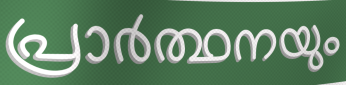
പ്രാർത്ഥനയും